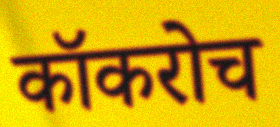
कॉकरोच